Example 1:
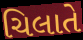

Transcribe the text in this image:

ચિલાતે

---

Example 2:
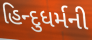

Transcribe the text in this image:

હિન્દુધર્મની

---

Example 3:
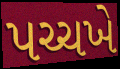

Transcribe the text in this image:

પચ્ચખે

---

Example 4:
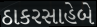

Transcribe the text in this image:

ઠાકરસાહેબે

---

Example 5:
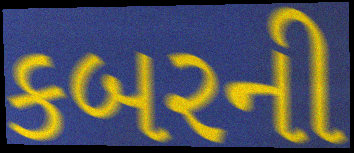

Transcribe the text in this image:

કબરની